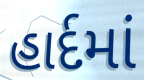
હાર્દમાં